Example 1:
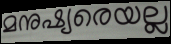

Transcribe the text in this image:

മനുഷ്യരെയല്ല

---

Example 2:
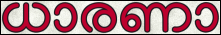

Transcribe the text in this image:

ധാരണാ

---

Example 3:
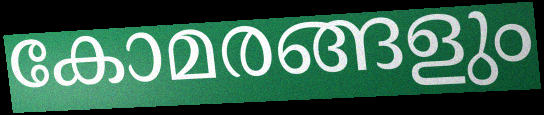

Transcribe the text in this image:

കോമരങ്ങളും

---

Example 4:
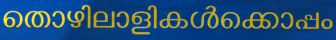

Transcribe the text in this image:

തൊഴിലാളികൾക്കൊപ്പം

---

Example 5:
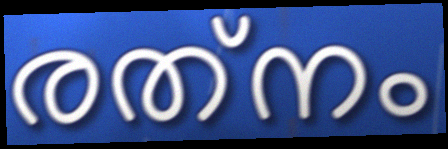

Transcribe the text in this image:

രത്‌നം